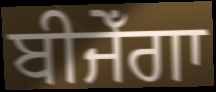
ਬੀਜੇਁਗਾ